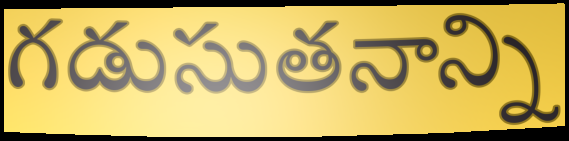
గడుసుతనాన్ని